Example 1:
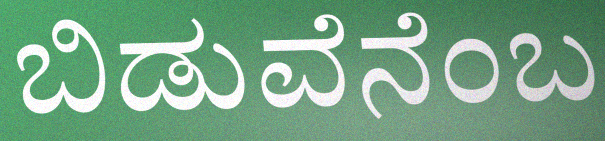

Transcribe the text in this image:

ಬಿಡುವೆನೆಂಬ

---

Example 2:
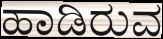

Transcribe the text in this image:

ಹಾಡಿರುವ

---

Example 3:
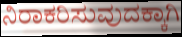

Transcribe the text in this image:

ನಿರಾಕರಿಸುವುದಕ್ಕಾಗಿ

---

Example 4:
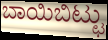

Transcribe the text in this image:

ಬಾಯಿಬಿಟ್ಟು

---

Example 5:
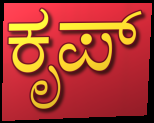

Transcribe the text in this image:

ಕೃಪ್